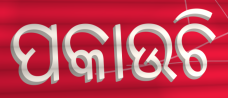
ପକାଉଚି